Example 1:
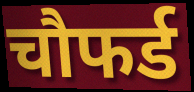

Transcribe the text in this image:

चौफर्ड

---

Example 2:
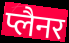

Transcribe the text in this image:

प्लैनर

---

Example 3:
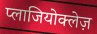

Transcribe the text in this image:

प्लाजियोक्लेज़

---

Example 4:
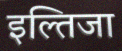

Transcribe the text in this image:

इल्तिजा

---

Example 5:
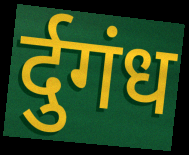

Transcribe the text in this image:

र्दुगंध